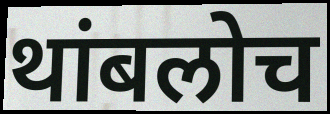
थांबलोच